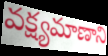
వక్ష్యమాణాని